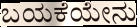
ಬಯಕೆಯೇನು